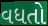
વધતો